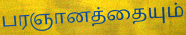
பரஞானத்தையும்